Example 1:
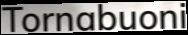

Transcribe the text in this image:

Tornabuoni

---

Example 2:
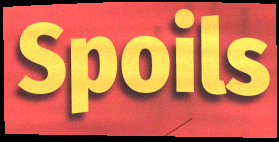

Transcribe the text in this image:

Spoils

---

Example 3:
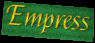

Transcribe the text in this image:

Empress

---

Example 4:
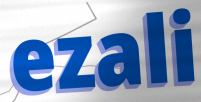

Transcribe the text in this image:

ezali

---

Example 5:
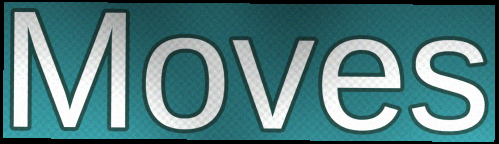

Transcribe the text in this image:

Moves